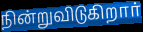
நின்றுவிடுகிறார்